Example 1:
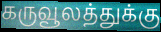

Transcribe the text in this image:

கருவூலத்துக்கு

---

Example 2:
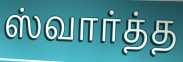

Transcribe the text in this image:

ஸ்வார்த்த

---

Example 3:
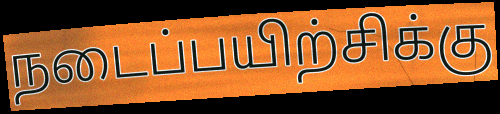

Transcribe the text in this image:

நடைப்பயிற்சிக்கு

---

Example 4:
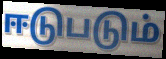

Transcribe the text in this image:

ஈடுபடும்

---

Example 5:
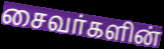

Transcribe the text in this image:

சைவர்களின்